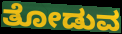
ತೋಡುವ